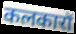
कलकारों